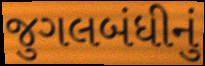
જુગલબંધીનું